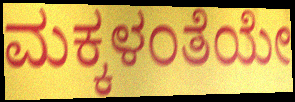
ಮಕ್ಕಳಂತೆಯೇ